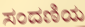
ಸಂದಣಿಯ